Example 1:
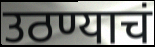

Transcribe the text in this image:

उठण्याचं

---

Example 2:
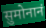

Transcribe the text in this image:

सुमोनानं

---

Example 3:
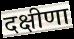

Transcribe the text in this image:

दक्षीणा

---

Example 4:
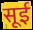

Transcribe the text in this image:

सूई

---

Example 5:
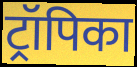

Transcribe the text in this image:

ट्रॉपिका